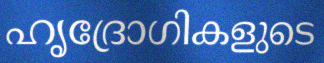
ഹൃദ്രോഗികളുടെ